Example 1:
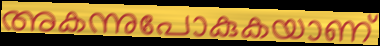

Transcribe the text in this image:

അകന്നുപോകുകയാണ്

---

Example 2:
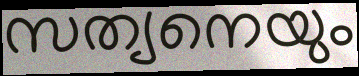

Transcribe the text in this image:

സത്യനെയും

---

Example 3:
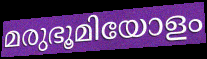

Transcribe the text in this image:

മരുഭൂമിയോളം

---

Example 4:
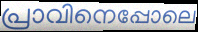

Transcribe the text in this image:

പ്രാവിനെപ്പോലെ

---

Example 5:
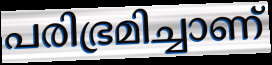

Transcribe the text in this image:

പരിഭ്രമിച്ചാണ്